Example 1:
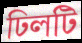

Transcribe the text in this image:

ঢিলটি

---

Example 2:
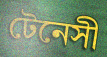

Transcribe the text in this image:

টেনেসী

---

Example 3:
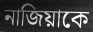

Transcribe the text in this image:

নাজিয়াকে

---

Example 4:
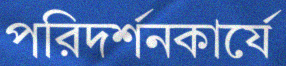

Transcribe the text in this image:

পরিদর্শনকার্যে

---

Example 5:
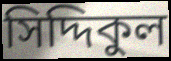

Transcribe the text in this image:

সিদ্দিকুল